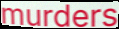
murders